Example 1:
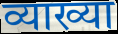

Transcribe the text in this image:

व्याख्‍या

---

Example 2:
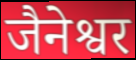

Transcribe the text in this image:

जैनेश्वर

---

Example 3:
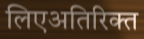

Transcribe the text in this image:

लिएअतिरिक्त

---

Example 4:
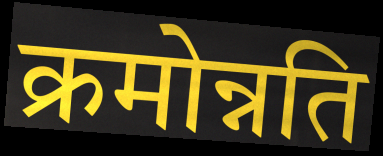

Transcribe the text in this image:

क्रमोन्नति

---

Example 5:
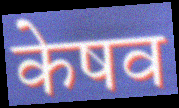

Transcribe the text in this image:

केषव